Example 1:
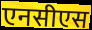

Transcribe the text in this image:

एनसीएस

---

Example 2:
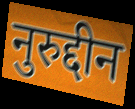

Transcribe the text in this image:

नुरुद्दीन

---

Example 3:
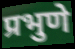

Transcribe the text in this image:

प्रभुणे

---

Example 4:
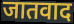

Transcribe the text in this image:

जातवाद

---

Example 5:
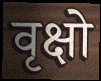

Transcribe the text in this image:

वृक्षो